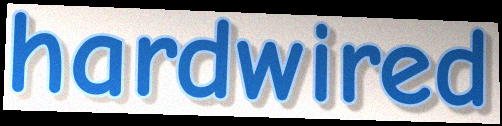
hardwired